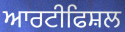
ਆਰਟੀਫਿਸ਼ਲ